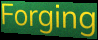
Forging